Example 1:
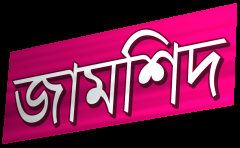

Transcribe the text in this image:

জামশিদ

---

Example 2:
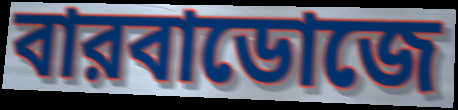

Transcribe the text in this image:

বারবাডোজে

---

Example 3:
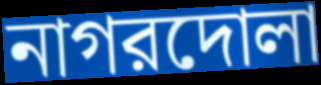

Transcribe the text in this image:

নাগরদোলা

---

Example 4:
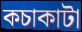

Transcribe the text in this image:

কচাকাটা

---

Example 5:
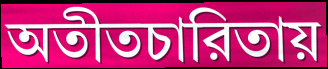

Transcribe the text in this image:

অতীতচারিতায়